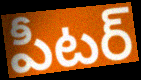
పీటర్